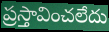
ప్రస్తావించలేదు